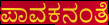
ಪಾವಕನಂತೆ